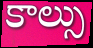
కాల్సు